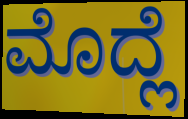
ಮೊದ್ಲೆ